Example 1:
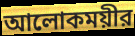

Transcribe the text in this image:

আলোকময়ীর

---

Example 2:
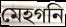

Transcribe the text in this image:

মেহগনি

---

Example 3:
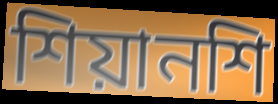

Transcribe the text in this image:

শিয়ানশি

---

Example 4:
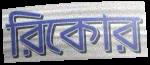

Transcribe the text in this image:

রিকোর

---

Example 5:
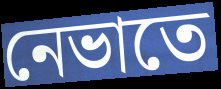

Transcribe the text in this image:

নেভাতে